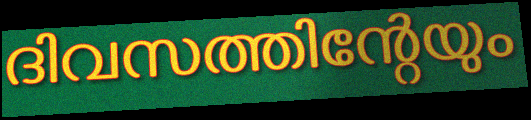
ദിവസത്തിന്റേയും